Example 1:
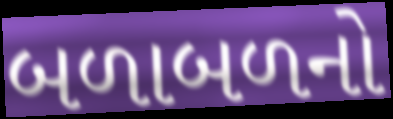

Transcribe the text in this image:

બળાબળનો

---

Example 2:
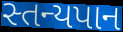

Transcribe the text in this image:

સ્તન્યપાન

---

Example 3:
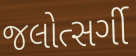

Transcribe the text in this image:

જલોત્સર્ગી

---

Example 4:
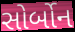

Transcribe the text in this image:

સોર્બોન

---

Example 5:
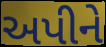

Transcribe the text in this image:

અપીને